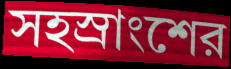
সহস্রাংশের